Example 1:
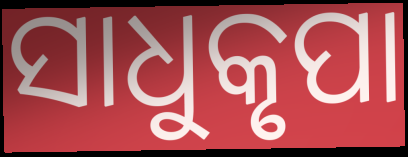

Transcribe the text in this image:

ସାଧୁକୃପା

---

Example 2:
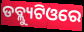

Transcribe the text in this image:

ଡବ୍ଲ୍ୟୁଟିଓରେ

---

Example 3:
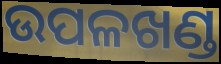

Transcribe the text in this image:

ଉପଳଖଣ୍ଡ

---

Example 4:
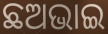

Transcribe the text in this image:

ଛଅଭାଇ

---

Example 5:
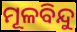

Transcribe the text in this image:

ମୂଳବିନ୍ଦୁ